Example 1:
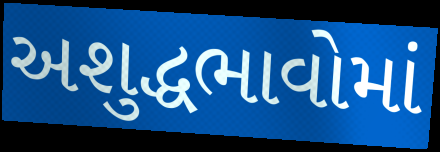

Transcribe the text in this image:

અશુદ્ધભાવોમાં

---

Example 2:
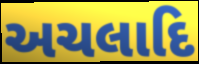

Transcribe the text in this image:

અચલાદિ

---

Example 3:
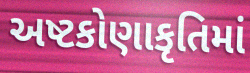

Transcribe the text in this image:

અષ્ટકોણાકૃતિમાં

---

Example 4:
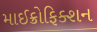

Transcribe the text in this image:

માઈક્રોફિક્શન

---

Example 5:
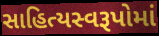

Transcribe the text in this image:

સાહિત્યસ્વરૂપોમાં